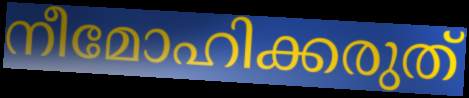
നീമോഹിക്കരുത്